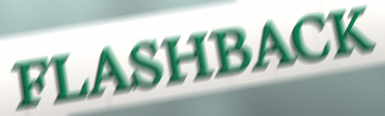
FLASHBACK